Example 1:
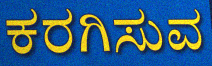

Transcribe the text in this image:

ಕರಗಿಸುವ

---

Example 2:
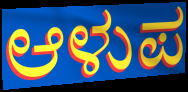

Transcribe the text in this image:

ಆಳುಪ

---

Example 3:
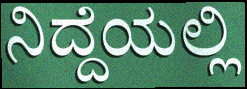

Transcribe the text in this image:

ನಿದ್ದೆಯಲ್ಲಿ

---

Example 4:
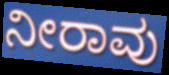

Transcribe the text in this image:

ನೀರಾವು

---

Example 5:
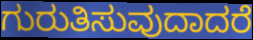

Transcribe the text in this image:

ಗುರುತಿಸುವುದಾದರೆ